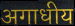
अगाधीय